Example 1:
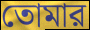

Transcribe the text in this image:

তোমার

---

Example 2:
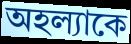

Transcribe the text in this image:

অহল্যাকে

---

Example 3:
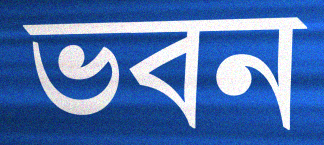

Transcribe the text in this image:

ভবন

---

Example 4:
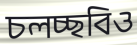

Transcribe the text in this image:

চলচ্ছবিও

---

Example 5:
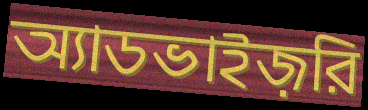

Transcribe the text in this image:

অ্যাডভাইজ়রি